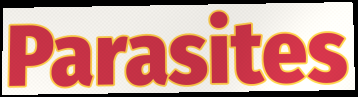
Parasites